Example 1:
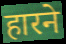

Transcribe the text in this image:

हारने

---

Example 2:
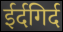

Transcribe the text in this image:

ईर्दगिर्द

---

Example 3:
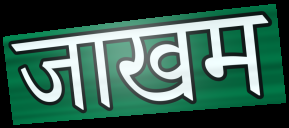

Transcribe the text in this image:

जाखम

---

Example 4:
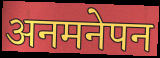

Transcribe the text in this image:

अनमनेपन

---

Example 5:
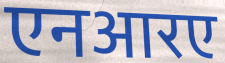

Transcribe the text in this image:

एनआरए